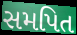
સમપિત